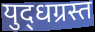
युद्धग्रस्त